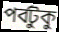
পর্বটুকু